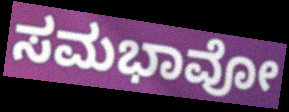
ಸಮಭಾವೋ